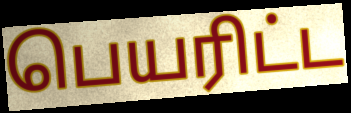
பெயரிட்ட